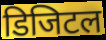
डिजिटल